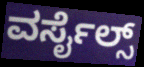
ವರ್ಸೈಲ್ಸ್